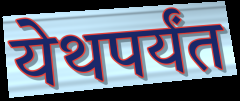
येथपर्यंत